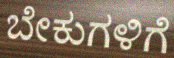
ಬೇಕುಗಳಿಗೆ